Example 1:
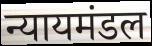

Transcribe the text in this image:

न्यायमंडल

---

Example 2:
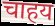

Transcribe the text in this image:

चाहय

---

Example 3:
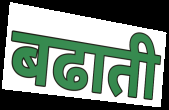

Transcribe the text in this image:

बढाती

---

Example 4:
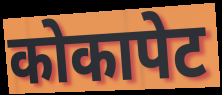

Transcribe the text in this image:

कोकापेट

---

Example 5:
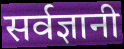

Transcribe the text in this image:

सर्वज्ञानी